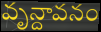
వృన్దావనం